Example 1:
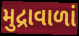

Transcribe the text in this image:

મુદ્રાવાળાં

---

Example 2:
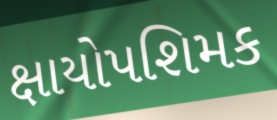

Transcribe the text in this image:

ક્ષાયોપશિમક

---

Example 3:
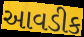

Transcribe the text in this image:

આવડીક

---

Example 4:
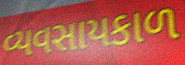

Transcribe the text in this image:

વ્યવસાયકાળ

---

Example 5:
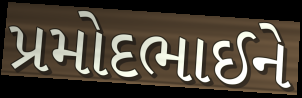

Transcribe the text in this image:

પ્રમોદભાઈને